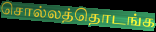
சொல்லத்தொடங்க